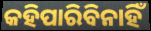
କହିପାରିବିନାହିଁ